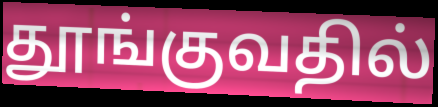
தூங்குவதில்